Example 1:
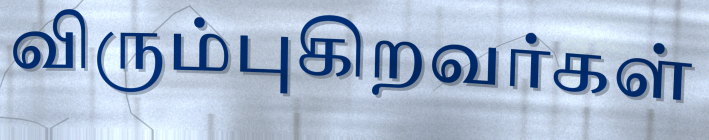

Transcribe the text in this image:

விரும்புகிறவர்கள்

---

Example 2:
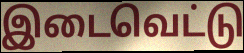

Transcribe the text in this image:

இடைவெட்டு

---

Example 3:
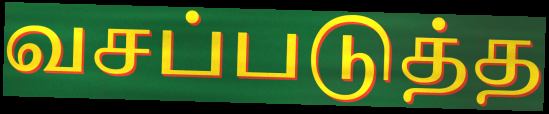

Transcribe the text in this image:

வசப்படுத்த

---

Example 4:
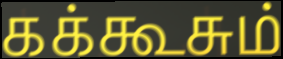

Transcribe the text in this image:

கக்கூசும்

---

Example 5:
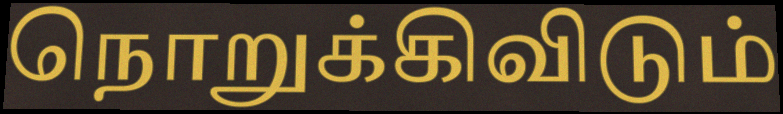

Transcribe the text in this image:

நொறுக்கிவிடும்